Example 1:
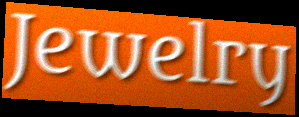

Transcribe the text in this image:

Jewelry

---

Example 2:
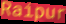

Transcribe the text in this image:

Raipur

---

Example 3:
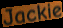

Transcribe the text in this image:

Jackie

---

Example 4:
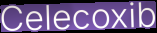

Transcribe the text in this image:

Celecoxib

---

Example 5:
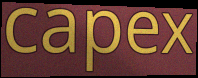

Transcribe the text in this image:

capex